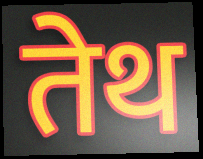
तेथ